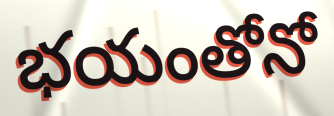
భయంతోనో